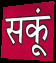
सकूं